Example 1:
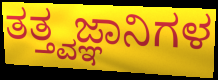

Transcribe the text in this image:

ತತ್ತ್ವಜ್ಞಾನಿಗಳ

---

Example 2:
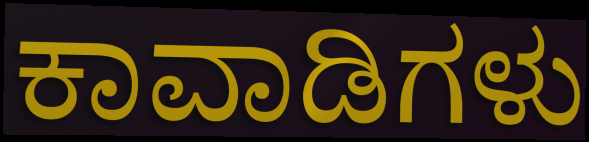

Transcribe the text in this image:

ಕಾವಾಡಿಗಳು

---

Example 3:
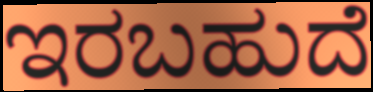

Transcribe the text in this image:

ಇರಬಹುದೆ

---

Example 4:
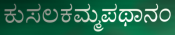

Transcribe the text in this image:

ಕುಸಲಕಮ್ಮಪಥಾನಂ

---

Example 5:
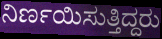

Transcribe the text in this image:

ನಿರ್ಣಯಿಸುತ್ತಿದ್ದರು